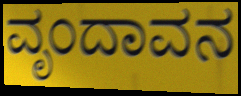
ವೃಂದಾವನ